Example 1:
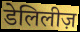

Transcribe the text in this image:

डेलिलीज़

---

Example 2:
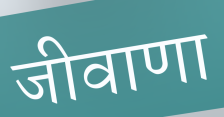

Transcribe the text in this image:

जीवाणा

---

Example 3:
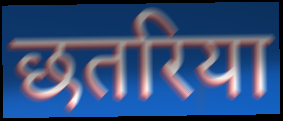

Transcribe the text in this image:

छतरिया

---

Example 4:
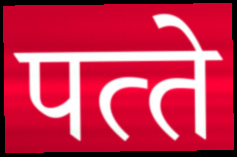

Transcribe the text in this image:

पत्‍ते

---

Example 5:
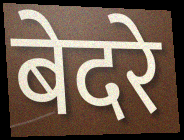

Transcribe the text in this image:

बेदरे